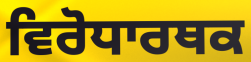
ਵਿਰੋਧਾਰਥਕ